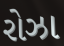
રોઝા